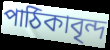
পাঠিকাবৃন্দ